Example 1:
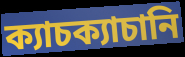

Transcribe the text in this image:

ক্যাচক্যাচানি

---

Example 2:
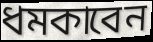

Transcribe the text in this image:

ধমকাবেন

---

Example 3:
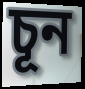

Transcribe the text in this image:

চূন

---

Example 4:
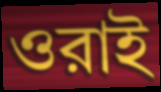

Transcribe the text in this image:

ওরাই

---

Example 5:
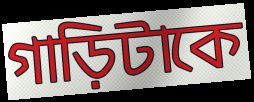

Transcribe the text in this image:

গাড়িটাকে